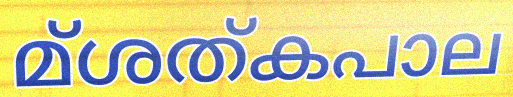
മ്ശത്കപാല